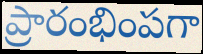
ప్రారంభింపగా